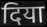
दिया